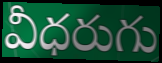
వీధరుగు